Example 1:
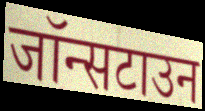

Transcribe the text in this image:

जॉन्सटाउन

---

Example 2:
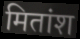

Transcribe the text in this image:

मितांश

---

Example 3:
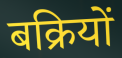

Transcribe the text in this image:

बक्रियों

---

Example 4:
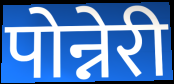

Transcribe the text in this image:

पोन्नेरी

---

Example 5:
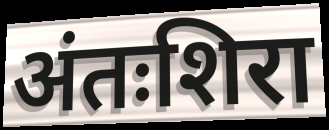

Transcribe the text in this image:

अंतःशिरा